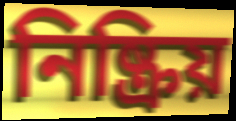
নিষ্ক্ৰিয়